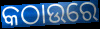
କଠାଉରେ